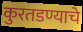
कुरतडण्याचे